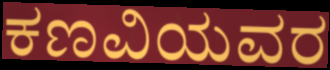
ಕಣವಿಯವರ